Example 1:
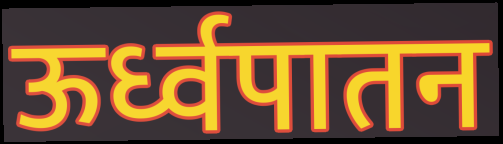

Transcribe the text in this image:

ऊर्ध्वपातन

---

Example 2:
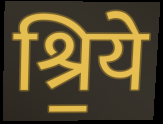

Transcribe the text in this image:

श्रि॒ये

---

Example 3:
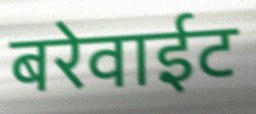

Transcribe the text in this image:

बरेवाईट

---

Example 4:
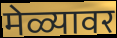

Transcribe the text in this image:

मेळ्यावर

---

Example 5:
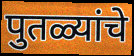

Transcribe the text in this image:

पुतळ्यांचे